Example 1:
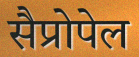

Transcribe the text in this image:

सैप्रोपेल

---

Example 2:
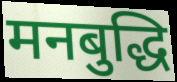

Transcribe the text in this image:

मनबुद्धि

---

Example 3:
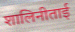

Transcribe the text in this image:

शालिनीताई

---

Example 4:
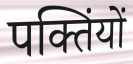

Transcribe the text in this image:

पक्तिंयों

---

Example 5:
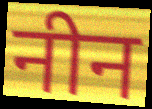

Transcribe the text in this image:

नीन